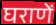
घराणें